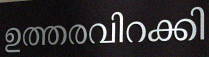
ഉത്തരവിറക്കി